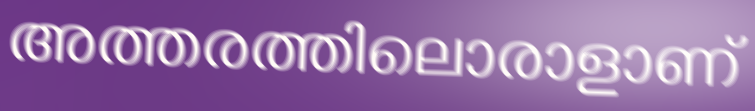
അത്തരത്തിലൊരാളാണ്